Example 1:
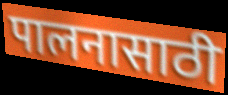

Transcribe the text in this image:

पालनासाठी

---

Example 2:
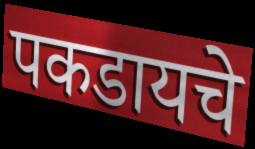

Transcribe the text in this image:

पकडायचे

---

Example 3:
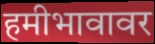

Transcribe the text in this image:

हमीभावावर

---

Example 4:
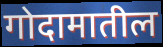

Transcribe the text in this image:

गोदामातील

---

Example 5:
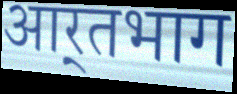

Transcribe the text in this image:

आर्तभाग